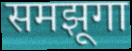
समझूगा